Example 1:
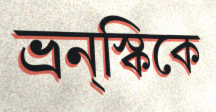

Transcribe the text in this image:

ভ্রন্‌স্কিকে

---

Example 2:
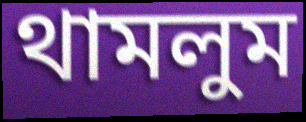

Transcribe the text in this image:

থামলুম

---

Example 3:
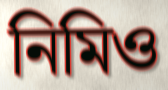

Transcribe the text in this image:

নিমিও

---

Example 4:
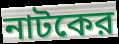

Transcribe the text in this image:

নাটকের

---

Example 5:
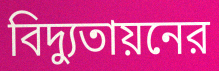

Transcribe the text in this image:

বিদ্যুতায়নের